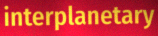
interplanetary